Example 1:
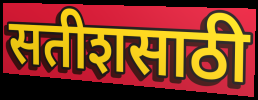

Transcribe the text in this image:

सतीशसाठी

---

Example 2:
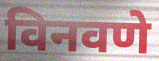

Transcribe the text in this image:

विनवणे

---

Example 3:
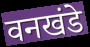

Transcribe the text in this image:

वनखंडे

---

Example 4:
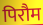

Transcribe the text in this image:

पिरौम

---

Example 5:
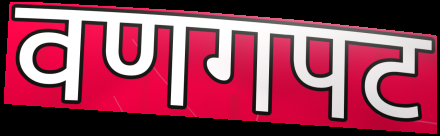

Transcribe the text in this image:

वणगपट